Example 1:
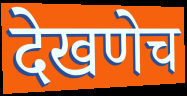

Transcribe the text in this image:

देखणेच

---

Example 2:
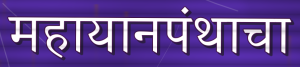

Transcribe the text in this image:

महायानपंथाचा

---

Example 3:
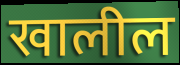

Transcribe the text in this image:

खालील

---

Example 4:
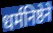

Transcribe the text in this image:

धर्मनिष्ठेने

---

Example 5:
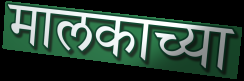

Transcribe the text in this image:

मालकाच्या